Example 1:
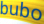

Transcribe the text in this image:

bubo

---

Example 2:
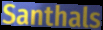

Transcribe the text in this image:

Santhals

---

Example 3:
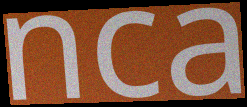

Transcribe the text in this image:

nca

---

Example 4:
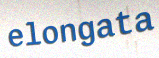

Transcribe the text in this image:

elongata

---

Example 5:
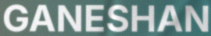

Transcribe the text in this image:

GANESHAN